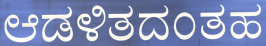
ಆಡಳಿತದಂತಹ